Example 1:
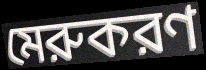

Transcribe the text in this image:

মেরুকরণ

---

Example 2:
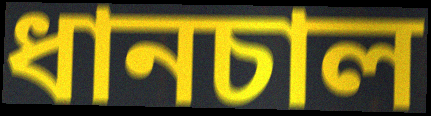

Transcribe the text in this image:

ধানচাল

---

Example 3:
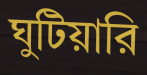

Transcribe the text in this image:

ঘুটিয়ারি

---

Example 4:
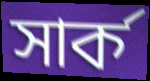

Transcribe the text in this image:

সার্ক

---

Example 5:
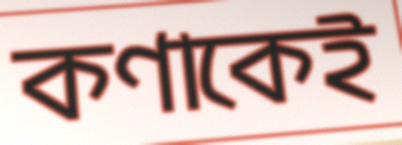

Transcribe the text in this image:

কণাকেই